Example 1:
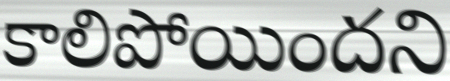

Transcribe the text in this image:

కాలిపోయిందని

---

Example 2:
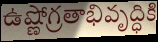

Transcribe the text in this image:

ఉష్ణోగ్రతాభివృద్ధికి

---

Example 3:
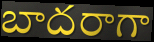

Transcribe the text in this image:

బాదరాగా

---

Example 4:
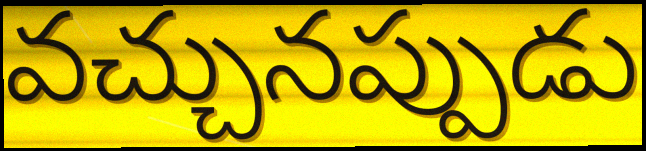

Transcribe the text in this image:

వచ్చునప్పుడు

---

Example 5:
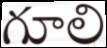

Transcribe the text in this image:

గూలి